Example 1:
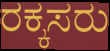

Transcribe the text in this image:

ರಕ್ಕಸರು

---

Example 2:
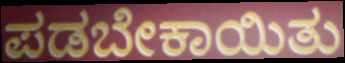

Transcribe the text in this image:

ಪಡಬೇಕಾಯಿತು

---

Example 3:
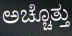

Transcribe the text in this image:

ಅಚ್ಚೊತ್ತು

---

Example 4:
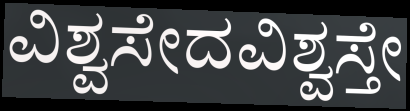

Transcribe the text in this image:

ವಿಶ್ವಸೇದವಿಶ್ವಸ್ತೇ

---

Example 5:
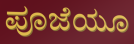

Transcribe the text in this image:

ಪೂಜೆಯೂ